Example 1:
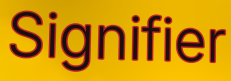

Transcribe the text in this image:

Signifier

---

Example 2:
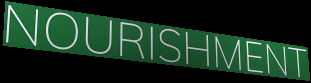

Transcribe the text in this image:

NOURISHMENT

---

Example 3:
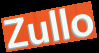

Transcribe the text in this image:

Zullo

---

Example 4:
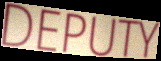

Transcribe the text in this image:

DEPUTY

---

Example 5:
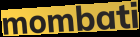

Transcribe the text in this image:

mombati